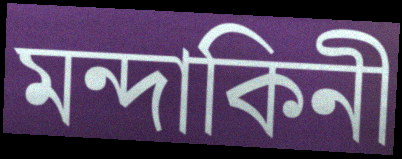
মন্দাকিনী